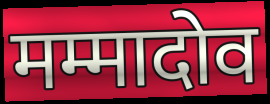
मम्मादोव